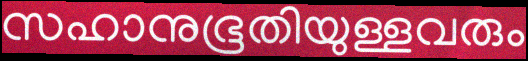
സഹാനുഭൂതിയുള്ളവരും